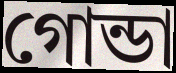
গোন্ডা